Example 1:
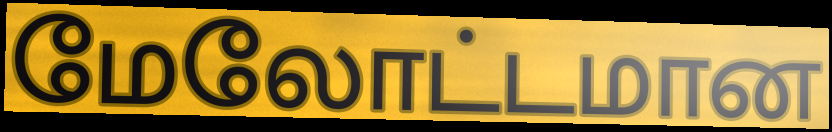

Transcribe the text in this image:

மேலோட்டமான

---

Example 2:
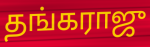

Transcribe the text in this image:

தங்கராஜு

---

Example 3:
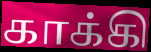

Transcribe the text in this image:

காக்கி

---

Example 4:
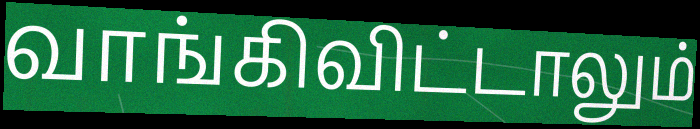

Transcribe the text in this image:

வாங்கிவிட்டாலும்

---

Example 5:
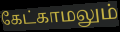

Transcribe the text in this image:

கேட்காமலும்